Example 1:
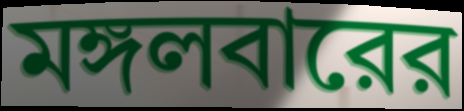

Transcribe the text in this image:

মঙ্গলবারের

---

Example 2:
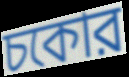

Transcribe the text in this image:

চকোর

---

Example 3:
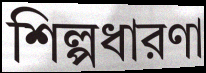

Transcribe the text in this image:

শিল্পধারণা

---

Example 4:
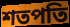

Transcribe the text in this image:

শতপতি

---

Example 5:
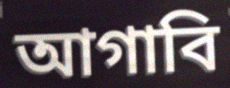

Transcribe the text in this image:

আগাবি